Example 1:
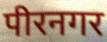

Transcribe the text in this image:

पीरनगर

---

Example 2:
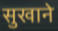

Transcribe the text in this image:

सुखाने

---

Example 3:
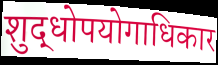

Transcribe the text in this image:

शुद्धोपयोगाधिकार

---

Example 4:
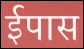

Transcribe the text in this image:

ईपास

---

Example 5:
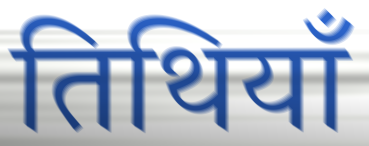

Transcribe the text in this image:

तिथियाँ